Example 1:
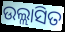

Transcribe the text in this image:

ଉଲ୍ଲାସିତ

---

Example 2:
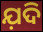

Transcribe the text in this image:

ଯ଼ଦି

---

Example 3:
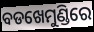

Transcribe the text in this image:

ବଡଖେମୁଣ୍ଡିରେ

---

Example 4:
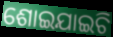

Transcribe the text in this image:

ଶୋଇଯାଇଚି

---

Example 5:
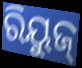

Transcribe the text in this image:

ରିୟୁଜ୍